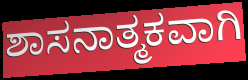
ಶಾಸನಾತ್ಮಕವಾಗಿ